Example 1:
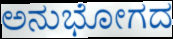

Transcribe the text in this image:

ಅನುಭೋಗದ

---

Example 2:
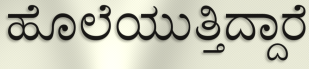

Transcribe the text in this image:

ಹೊಲೆಯುತ್ತಿದ್ದಾರೆ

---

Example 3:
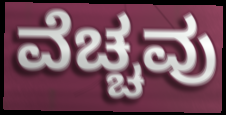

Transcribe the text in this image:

ವೆಚ್ಚವು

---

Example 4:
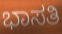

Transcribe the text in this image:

ಭಾಸತಿ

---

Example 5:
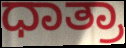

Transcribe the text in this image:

ಧಾತ್ರಾ